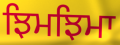
ਝਿਮਝਿਮਾ